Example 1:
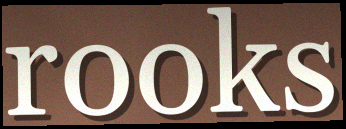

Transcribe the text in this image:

rooks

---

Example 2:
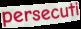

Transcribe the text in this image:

persecuti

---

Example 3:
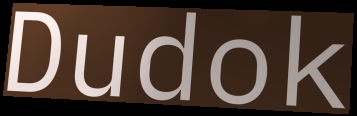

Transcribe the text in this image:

Dudok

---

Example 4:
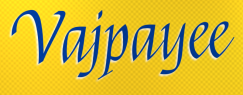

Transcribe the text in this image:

Vajpayee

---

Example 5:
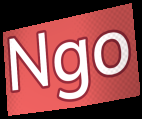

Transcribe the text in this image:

Ngo